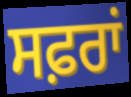
ਸਫ਼ਰਾਂ